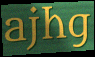
ajhg